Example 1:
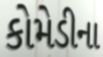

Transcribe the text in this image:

કોમેડીના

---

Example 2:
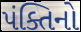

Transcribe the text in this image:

પંક્તિનો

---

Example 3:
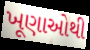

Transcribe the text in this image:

ખૂણાઓથી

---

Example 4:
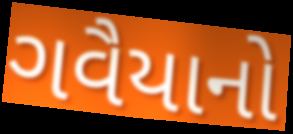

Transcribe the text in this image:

ગવૈયાનો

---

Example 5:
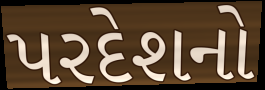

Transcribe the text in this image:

પરદેશનો